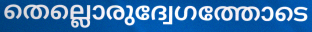
തെല്ലൊരുദ്വേഗത്തോടെ